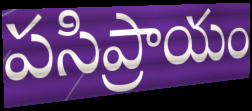
పసిప్రాయం